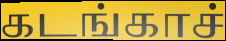
கடங்காச்